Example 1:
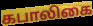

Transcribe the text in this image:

கபாலிகை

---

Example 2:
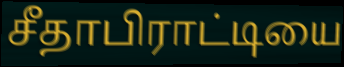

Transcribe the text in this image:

சீதாபிராட்டியை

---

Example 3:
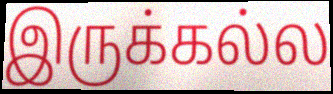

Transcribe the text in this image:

இருக்கல்ல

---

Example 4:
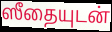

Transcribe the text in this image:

ஸீதையுடன்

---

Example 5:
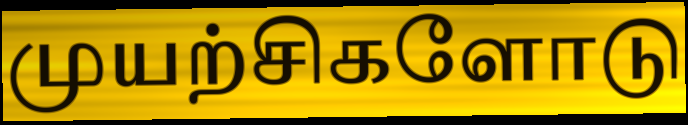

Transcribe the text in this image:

முயற்சிகளோடு